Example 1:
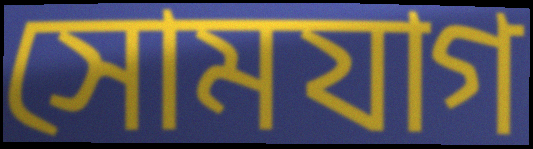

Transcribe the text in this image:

সোমযাগ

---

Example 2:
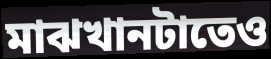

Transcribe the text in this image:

মাঝখানটাতেও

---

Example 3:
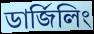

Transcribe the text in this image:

ডার্জিলিং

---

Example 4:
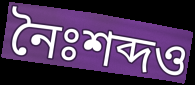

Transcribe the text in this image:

নৈঃশব্দও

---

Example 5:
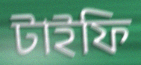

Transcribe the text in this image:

টাইফি